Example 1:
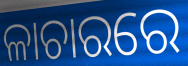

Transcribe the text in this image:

ଳାଚାରରେ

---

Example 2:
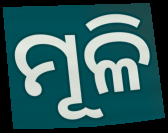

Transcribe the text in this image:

ମୂଳି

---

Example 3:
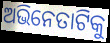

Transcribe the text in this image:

ଅଭିନେତାଟିକୁ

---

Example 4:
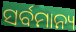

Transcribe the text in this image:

ସର୍ବମାନ୍ୟ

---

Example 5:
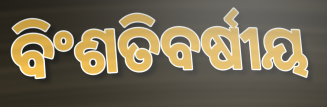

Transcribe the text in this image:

ବିଂଶତିବର୍ଷୀୟ